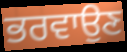
ਭਰਵਾਉਣ